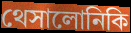
থেসালোনিকি